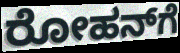
ರೋಹನ್‌ಗೆ